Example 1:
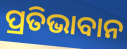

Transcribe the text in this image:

ପ୍ରତିଭାବାନ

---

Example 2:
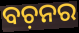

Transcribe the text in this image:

ବଚ଼ନର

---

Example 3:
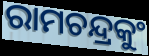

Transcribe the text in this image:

ରାମଚନ୍ଦ୍ରକୁଂ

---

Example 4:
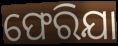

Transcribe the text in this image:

ଫେରିଯା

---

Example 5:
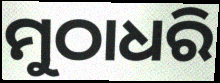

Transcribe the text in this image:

ମୁଠାଧରି